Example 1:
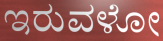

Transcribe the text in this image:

ಇರುವಳೋ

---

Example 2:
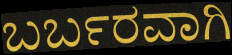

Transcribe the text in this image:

ಬರ್ಬರವಾಗಿ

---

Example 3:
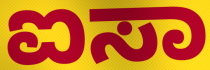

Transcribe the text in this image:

ಐಸಾ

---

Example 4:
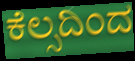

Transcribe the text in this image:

ಕೆಲ್ಸದಿಂದ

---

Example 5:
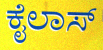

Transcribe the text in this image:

ಕೈಲಾಸ್